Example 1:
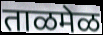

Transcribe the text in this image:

ताळमेळ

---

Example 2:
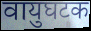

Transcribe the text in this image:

वायुघटक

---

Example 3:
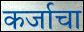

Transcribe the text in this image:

कर्जाचा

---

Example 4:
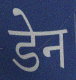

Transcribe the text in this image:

डेन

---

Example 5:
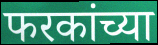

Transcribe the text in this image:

फरकांच्या